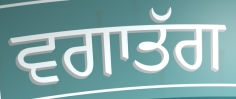
ਵਗਾਤੱਗ